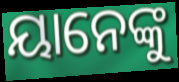
ୟାନେଙ୍କୁ